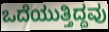
ಒದೆಯುತ್ತಿದ್ದವು